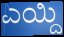
ಎಯ್ದಿ